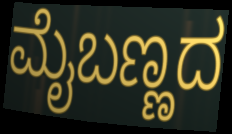
ಮೈಬಣ್ಣದ